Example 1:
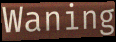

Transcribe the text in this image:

Waning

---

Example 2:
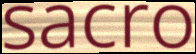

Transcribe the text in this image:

sacro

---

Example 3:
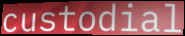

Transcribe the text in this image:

custodial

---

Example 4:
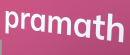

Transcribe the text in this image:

pramath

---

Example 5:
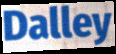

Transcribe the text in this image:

Dalley